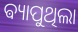
ଵ୍ୟାପୁଥିଲା